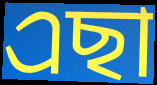
এছা